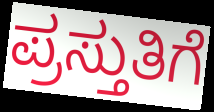
ಪ್ರಸ್ತುತಿಗೆ